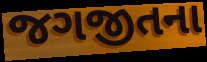
જગજીતના